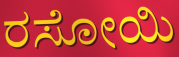
ರಸೋಯಿ